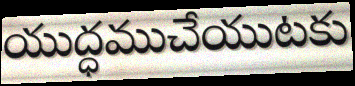
యుద్ధముచేయుటకు